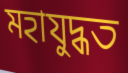
মহাযুদ্ধত